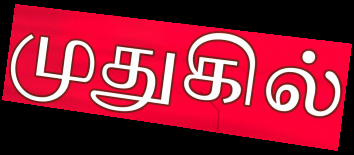
முதுகில்